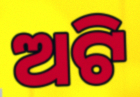
ଅଟି